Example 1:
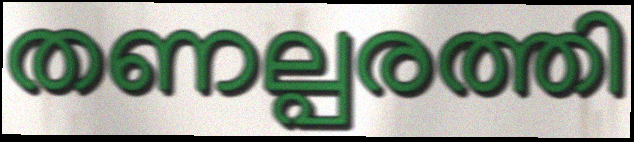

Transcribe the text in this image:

തണല്പരത്തി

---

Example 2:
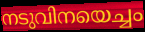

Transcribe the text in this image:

നടുവിനയെച്ചം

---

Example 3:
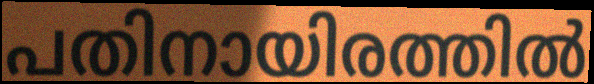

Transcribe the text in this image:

പതിനായിരത്തിൽ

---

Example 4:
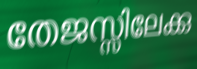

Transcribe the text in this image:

തേജസ്സിലേക്കു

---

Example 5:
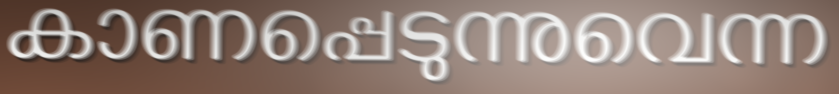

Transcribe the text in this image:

കാണപ്പെടുന്നുവെന്ന